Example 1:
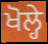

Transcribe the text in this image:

ਖੋਲ੍ਹੇ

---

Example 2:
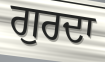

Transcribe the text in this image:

ਗੁਰਦਾ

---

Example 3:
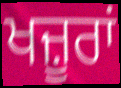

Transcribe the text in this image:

ਖਜ਼ੂਰਾਂ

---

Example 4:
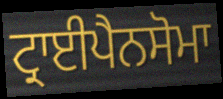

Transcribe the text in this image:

ਟ੍ਰਾਈਪੈਨਸੋਮਾ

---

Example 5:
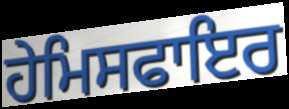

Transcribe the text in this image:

ਹੇਮਿਸਫਾਇਰ